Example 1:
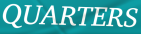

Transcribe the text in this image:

QUARTERS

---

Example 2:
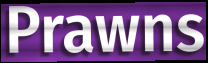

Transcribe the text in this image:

Prawns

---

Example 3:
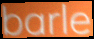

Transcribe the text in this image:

barle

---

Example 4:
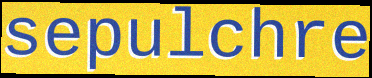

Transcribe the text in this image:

sepulchre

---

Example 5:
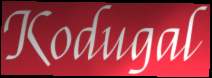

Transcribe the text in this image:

Kodugal